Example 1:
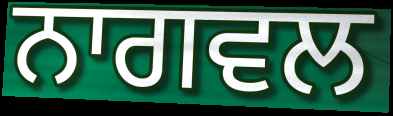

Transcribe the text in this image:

ਨਾਗਵਲ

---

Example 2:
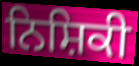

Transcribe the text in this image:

ਨਿਸ਼ਿਕੀ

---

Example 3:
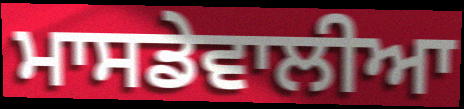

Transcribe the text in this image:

ਮਾਸਡੇਵਾਲੀਆ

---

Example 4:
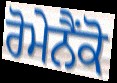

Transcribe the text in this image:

ਰੋਮੇਨੈਂਕੋ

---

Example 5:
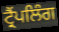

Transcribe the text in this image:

ਟ੍ਰੈਂਪਲਿੰਗ